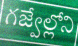
గజ్వేల్లోని